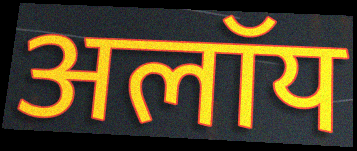
अलॉय